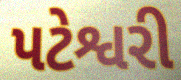
પટેશ્વરી